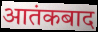
आतंकबाद